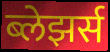
ब्लेझर्स